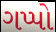
ગપ્પો